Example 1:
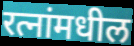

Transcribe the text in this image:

रत्नांमधील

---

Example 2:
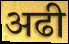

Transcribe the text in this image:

अढी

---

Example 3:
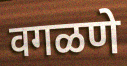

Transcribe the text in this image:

वगळणे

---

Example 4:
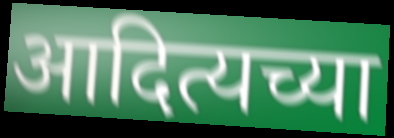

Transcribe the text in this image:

आदित्यच्या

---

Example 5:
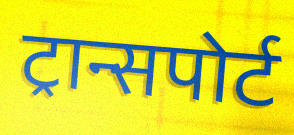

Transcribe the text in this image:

ट्रान्सपोर्ट